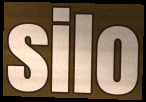
silo